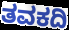
ತವಕದಿ